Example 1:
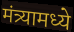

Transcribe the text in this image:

मंत्र्यामध्ये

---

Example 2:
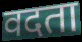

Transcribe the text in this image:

वदता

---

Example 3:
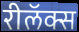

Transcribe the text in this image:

रीलॅक्स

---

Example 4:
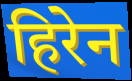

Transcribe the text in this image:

हिरेन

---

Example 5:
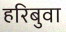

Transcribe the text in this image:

हरिबुवा